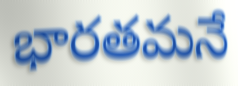
భారతమనే